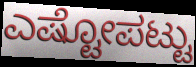
ಎಷ್ಟೋಪಟ್ಟು